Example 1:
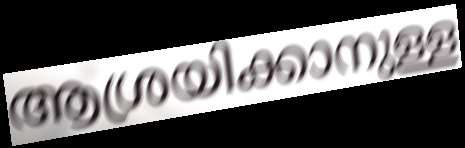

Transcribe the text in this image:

ആശ്രയിക്കാനുള്ള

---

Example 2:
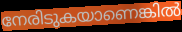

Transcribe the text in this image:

നേരിടുകയാണെങ്കിൽ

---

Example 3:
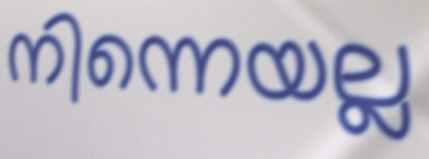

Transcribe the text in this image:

നിന്നെയല്ല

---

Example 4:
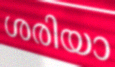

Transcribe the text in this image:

ശരിയാ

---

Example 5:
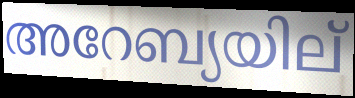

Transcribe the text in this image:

അറേബ്യയില്